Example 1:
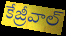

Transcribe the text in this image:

కేజ్రీవాల్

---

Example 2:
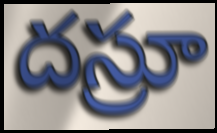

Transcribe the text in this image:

దస్రూ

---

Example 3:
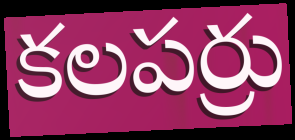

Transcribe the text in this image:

కలపర్రు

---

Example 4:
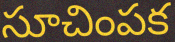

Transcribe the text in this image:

సూచింపక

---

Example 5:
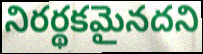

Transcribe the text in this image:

నిరర్థకమైనదని